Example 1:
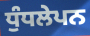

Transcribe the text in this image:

ਧੁੰਧਲੇਪਨ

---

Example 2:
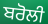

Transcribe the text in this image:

ਬਰੋਲੀ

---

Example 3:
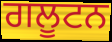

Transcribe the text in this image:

ਗਲੂਟਨ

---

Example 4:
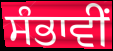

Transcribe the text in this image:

ਸੰਭਾਵੀਂ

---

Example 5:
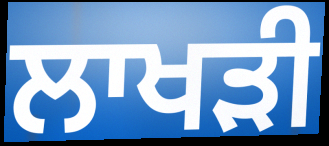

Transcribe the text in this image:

ਲਾਖੜੀ